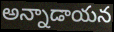
అన్నాడాయన